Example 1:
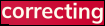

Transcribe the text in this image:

correcting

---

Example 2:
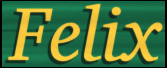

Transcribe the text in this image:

Felix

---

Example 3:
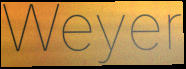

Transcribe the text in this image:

Weyer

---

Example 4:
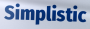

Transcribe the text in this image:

Simplistic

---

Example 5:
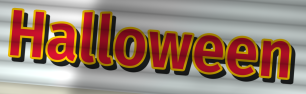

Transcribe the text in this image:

Halloween